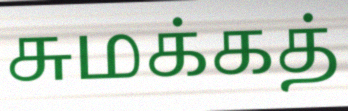
சுமக்கத்